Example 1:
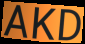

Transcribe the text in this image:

AKD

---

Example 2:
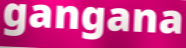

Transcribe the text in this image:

gangana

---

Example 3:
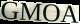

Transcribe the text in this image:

GMOA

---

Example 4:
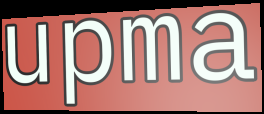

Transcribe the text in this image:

upma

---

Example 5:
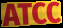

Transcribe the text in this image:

ATCC